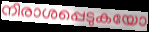
നിരാശപ്പെടുകയോ